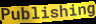
Publishing